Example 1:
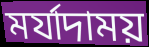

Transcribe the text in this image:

মর্যাদাময়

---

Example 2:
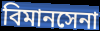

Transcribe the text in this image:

বিমানসেনা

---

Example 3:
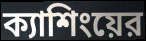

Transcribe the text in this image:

ক্যাশিংয়ের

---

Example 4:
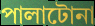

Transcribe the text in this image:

পালাটোনা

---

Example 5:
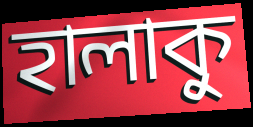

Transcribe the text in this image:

হালাকু